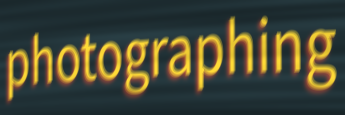
photographing